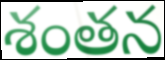
శంతన